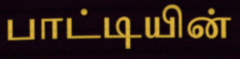
பாட்டியின்